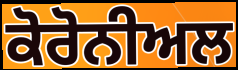
ਕੋਰੋਨੀਅਲ